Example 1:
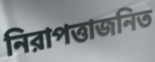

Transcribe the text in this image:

নিরাপত্তাজনিত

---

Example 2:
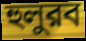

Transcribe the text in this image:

হুলুরব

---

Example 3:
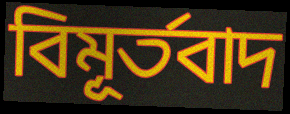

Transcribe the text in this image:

বিমূর্তবাদ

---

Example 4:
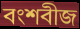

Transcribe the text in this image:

বংশবীজ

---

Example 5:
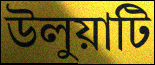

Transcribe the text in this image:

উলুয়াটি